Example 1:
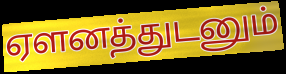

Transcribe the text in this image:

ஏளனத்துடனும்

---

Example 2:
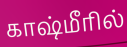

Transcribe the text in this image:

காஷ்மீரில்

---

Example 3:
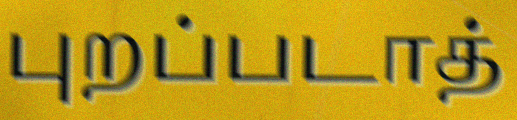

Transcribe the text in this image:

புறப்படாத்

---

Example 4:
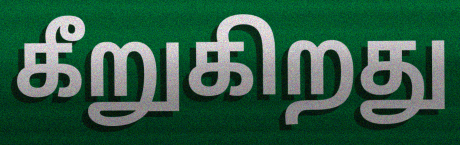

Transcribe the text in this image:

கீறுகிறது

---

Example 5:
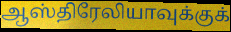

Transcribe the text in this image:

ஆஸ்திரேலியாவுக்குக்